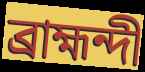
ব্রাহ্মন্দী